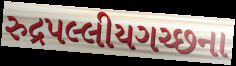
રુદ્રપલ્લીયગચ્છના